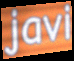
javi